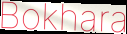
Bokhara